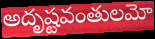
అదృష్టవంతులమో